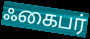
ஃகைபர்